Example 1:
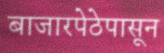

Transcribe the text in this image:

बाजारपेठेपासून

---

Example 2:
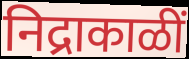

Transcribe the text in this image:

निद्राकाळीं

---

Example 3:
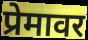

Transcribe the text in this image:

प्रेमावर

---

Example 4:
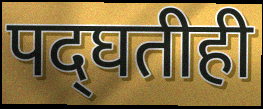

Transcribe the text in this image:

पद्घतीही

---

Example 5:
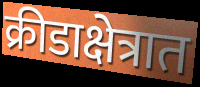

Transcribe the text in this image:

क्रीडाक्षेत्रात